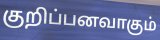
குறிப்பனவாகும்